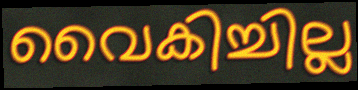
വൈകിച്ചില്ല